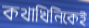
কথাখিনিকেই